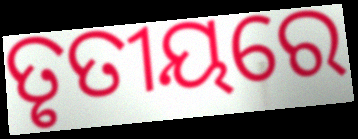
ତୃତୀୟରେ